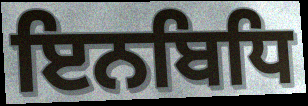
ਇਨਬਿਧਿ